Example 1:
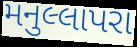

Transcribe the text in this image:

મનુલ્લાપરા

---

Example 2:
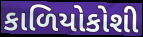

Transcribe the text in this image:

કાળિયોકોશી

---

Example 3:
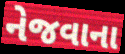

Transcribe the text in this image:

નેજવાના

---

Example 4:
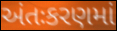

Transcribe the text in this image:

અંતઃકરણમાં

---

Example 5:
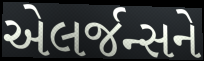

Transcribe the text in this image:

એલર્જન્સને